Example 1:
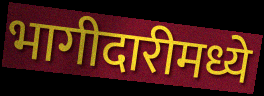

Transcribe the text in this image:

भागीदारीमध्ये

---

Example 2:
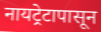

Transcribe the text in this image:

नायट्रेटापासून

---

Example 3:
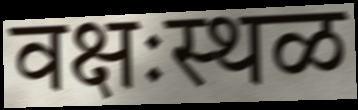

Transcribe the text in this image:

वक्षःस्थळ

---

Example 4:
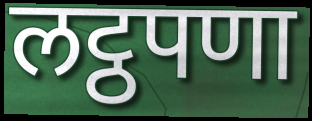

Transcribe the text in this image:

लट्ठपणा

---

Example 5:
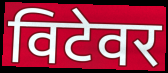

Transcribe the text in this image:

विटेवर